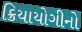
ક્રિયાયોગીનો